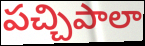
పచ్చిపాలా